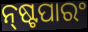
ନ୍‌ଷ୍ଟପାରଂ